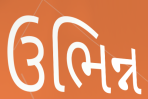
ઉભિન્ન